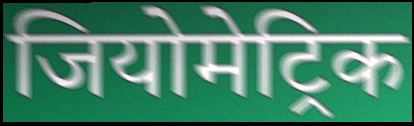
जियोमेट्रिक